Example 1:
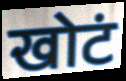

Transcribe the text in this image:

खोटं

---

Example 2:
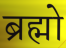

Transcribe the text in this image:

ब्रह्मो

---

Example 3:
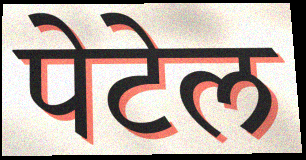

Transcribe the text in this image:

पेटेल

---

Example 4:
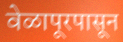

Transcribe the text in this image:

वेळापूरपासून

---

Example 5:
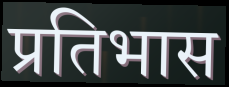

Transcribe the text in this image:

प्रतिभास